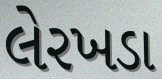
લેરખડા